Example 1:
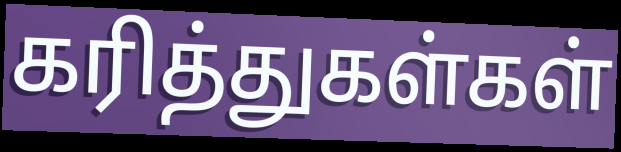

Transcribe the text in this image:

கரித்துகள்கள்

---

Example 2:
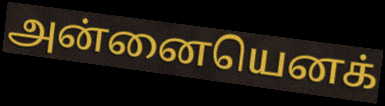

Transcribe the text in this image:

அன்னையெனக்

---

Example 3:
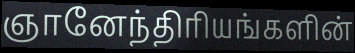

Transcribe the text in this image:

ஞானேந்திரியங்களின்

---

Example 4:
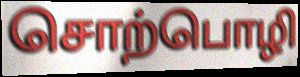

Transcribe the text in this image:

சொற்பொழி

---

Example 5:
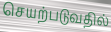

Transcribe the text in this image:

செயற்படுவதில்